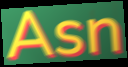
Asn